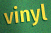
vinyl